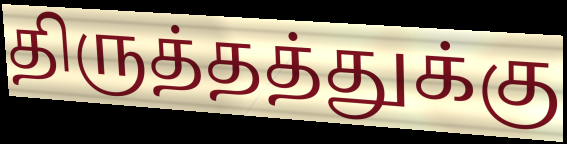
திருத்தத்துக்கு